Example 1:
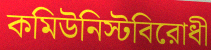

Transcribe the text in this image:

কমিউনিস্টবিরোধী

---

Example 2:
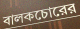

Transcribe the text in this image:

বালকচোরের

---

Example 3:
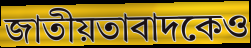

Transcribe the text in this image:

জাতীয়তাবাদকেও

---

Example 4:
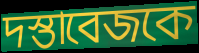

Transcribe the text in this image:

দস্তাবেজকে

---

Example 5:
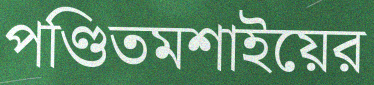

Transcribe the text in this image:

পণ্ডিতমশাইয়ের